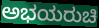
ಅಭಯರುಚಿ